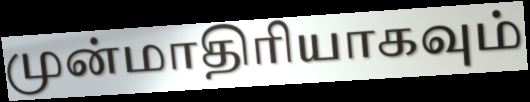
முன்மாதிரியாகவும்